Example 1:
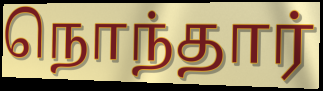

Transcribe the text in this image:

நொந்தார்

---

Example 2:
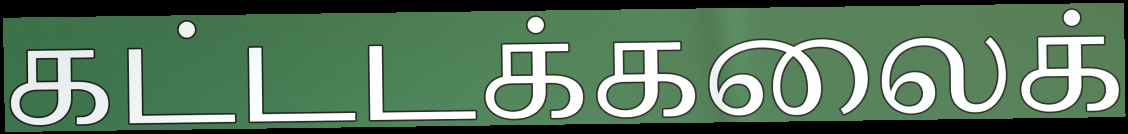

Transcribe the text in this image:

கட்டடக்கலைக்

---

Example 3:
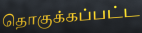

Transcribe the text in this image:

தொகுக்கப்பட்ட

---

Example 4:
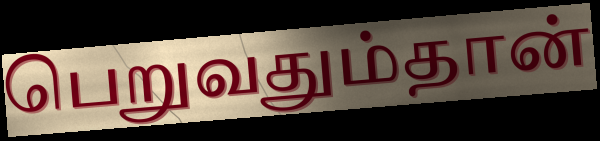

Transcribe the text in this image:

பெறுவதும்தான்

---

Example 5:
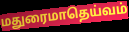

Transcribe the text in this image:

மதுரைமாதெய்வம்